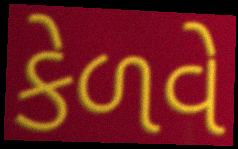
કેળવે